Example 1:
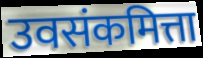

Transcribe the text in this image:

उवसंकमित्ता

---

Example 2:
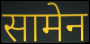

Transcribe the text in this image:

सामेन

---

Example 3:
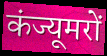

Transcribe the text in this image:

कंज्यूमरों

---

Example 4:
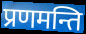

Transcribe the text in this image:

प्रणमन्ति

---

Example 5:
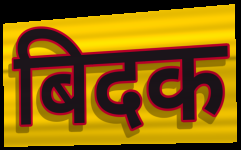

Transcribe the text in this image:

बिदक